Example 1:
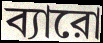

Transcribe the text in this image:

ব্যারো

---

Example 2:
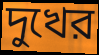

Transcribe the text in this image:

দুখের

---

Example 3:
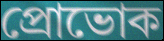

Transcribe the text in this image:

প্রোভোক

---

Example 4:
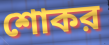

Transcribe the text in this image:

শোকর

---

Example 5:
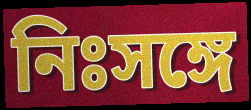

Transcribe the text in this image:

নিঃসঙ্গে